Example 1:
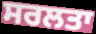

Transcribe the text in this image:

ਸਰਲਤਾ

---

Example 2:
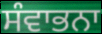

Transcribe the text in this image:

ਸੰਵਾਭਨਾ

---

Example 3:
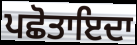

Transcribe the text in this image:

ਪਛੋਤਾਇਦਾ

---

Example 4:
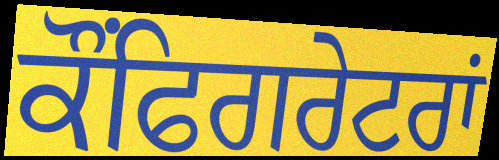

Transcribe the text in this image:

ਕੌਂਫਿਗਰੇਟਰਾਂ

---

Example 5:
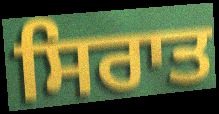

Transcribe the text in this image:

ਸਿਰਾਤ